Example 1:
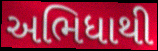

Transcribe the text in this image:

અભિધાથી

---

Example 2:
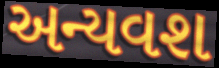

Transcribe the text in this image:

અન્યવશ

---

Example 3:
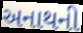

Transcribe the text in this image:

અનાથની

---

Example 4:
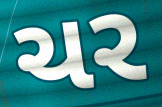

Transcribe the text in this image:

ચર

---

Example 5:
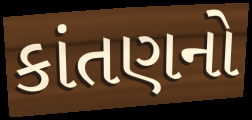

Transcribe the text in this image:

કાંતણનો